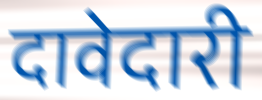
दावेदारी